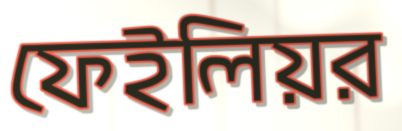
ফেইলিয়র